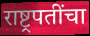
राष्ट्रपतींचा